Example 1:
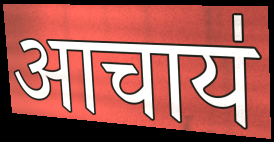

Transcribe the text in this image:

आचाय॑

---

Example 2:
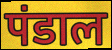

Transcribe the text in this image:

पंडाल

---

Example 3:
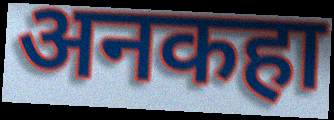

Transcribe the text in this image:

अनकहा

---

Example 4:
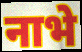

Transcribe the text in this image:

नाभे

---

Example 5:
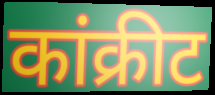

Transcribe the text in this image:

कांक्रीट